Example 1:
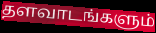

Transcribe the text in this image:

தளவாடங்களும்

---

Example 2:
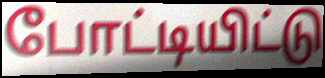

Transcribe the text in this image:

போட்டியிட்டு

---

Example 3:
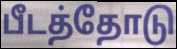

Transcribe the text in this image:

பீடத்தோடு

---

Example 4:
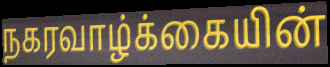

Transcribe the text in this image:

நகரவாழ்க்கையின்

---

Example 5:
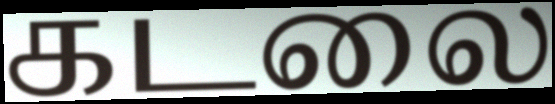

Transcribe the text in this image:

கடலை